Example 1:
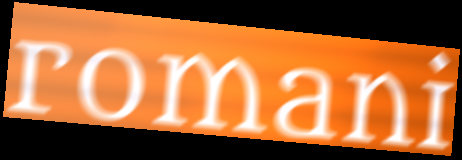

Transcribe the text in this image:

romani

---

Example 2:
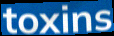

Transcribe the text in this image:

toxins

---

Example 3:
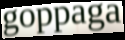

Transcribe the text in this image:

goppaga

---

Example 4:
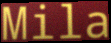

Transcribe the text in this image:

Mila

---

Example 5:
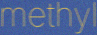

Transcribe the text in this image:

methyl